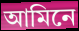
আমিনে